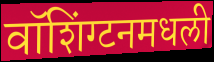
वॉशिंग्टनमधली